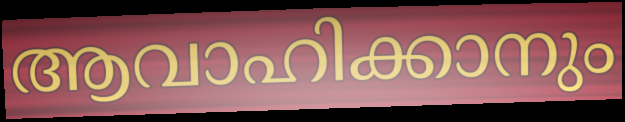
ആവാഹിക്കാനും